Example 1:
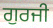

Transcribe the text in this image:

ਗੁਰਜੀ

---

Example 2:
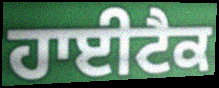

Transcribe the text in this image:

ਹਾਈਟੈਕ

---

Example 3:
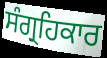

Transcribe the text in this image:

ਸੰਗ੍ਰਹਿਕਾਰ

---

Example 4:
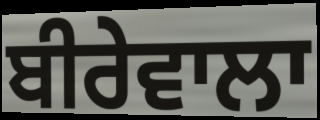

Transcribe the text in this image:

ਬੀਰੇਵਾਲਾ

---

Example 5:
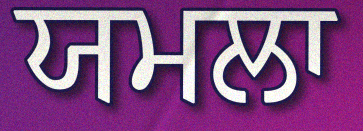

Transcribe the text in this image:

ਯਮਲਾ